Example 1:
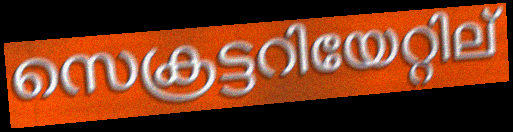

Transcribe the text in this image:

സെക്രട്ടറിയേറ്റില്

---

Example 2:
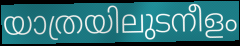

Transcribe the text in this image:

യാത്രയിലുടനീളം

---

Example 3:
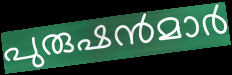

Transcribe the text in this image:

പുരുഷൻമാർ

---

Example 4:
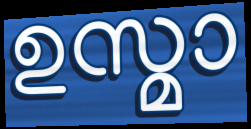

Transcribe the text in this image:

ഉസ്മാ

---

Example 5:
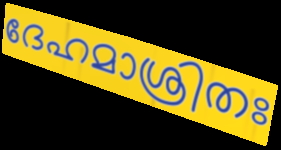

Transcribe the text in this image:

ദേഹമാശ്രിതഃ